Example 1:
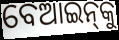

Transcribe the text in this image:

ବେଆଇନ୍‌କୁ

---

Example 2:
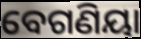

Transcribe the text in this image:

ବେଗଣିୟା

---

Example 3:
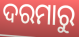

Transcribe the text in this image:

ଦରମାରୁ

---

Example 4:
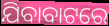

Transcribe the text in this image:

ଯିବାବାଟରେ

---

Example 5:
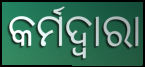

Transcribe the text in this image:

କର୍ମଦ୍ୱାରା